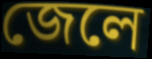
জেলে